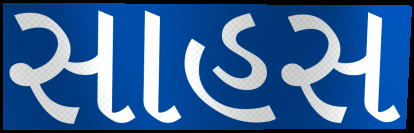
સાહસ